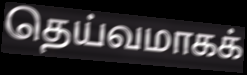
தெய்வமாகக்